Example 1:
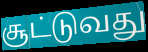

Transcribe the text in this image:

சூட்டுவது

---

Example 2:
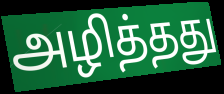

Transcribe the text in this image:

அழித்தது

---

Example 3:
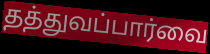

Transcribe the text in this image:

தத்துவப்பார்வை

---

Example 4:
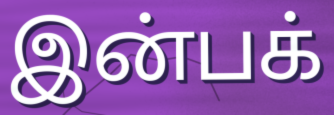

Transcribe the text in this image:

இன்பக்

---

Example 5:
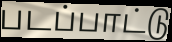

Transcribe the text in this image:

படப்பாட்டு